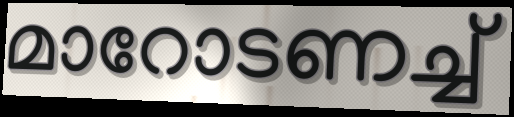
മാറോടണച്ച്